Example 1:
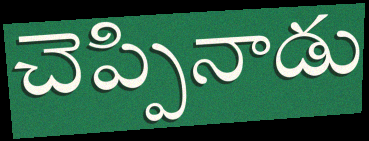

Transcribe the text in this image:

చెప్పినాడు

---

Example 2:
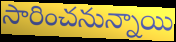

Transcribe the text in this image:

సారించనున్నాయి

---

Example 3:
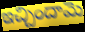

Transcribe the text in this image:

ఇచ్చిందామె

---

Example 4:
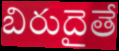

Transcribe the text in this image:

బిరుదైతే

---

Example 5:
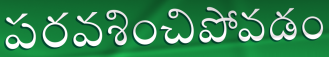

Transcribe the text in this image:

పరవశించిపోవడం